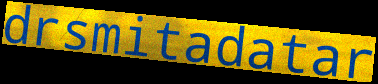
drsmitadatar